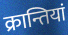
क्रान्तियां